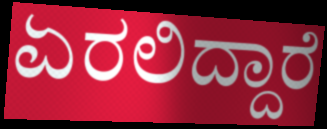
ಏರಲಿದ್ದಾರೆ